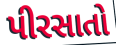
પીરસાતો